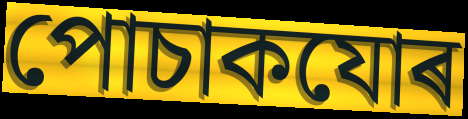
পোচাকযোৰ